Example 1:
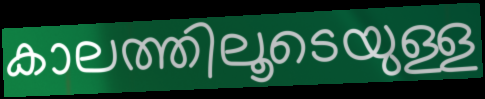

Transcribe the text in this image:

കാലത്തിലൂടെയുള്ള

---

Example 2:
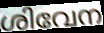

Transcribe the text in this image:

ശിവേന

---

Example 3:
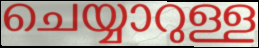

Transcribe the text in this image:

ചെയ്യാറുള്ള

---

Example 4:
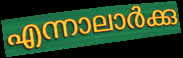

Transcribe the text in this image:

എന്നാലാർക്കു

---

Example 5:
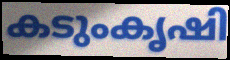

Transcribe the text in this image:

കടുംകൃഷി